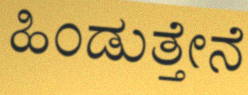
ಹಿಂಡುತ್ತೇನೆ